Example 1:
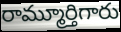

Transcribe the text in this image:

రామ్మూర్తిగారు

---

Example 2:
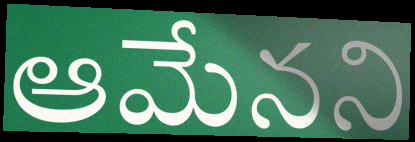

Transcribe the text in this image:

ఆమేనని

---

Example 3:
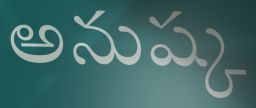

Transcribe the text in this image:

అనుష్క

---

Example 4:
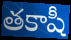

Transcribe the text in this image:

తకాషీ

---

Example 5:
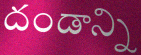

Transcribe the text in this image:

దండాన్ని